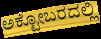
ಅಕ್ಟೋಬರದಲ್ಲಿ